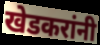
खेडकरांनी